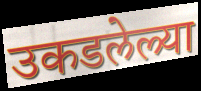
उकडलेल्या